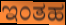
ಇಂತಹ